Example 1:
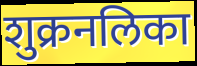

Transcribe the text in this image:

शुक्रनलिका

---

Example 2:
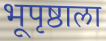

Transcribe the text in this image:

भूपृष्ठाला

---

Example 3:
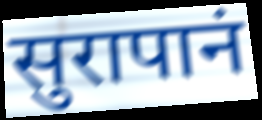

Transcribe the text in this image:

सुरापानं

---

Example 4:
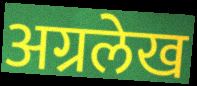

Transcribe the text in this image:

अग्रलेख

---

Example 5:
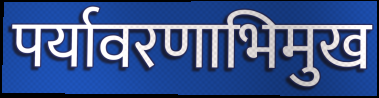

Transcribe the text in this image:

पर्यावरणाभिमुख